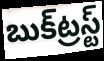
బుక్‌ట్రస్ట్